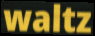
waltz